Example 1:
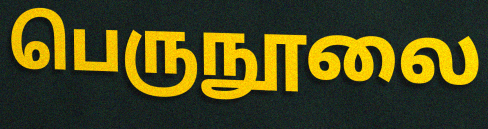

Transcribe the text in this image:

பெருநூலை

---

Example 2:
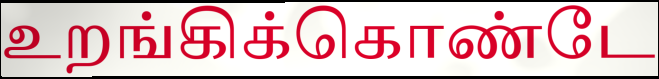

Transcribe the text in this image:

உறங்கிக்கொண்டே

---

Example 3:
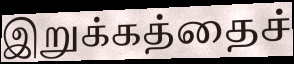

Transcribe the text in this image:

இறுக்கத்தைச்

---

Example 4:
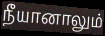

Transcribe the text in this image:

நீயானாலும்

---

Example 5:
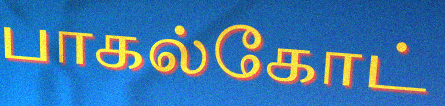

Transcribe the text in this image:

பாகல்கோட்